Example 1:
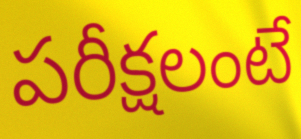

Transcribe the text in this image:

పరీక్షలంటే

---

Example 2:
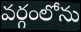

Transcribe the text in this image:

వర్గంలోను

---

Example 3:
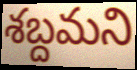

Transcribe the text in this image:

శబ్దమని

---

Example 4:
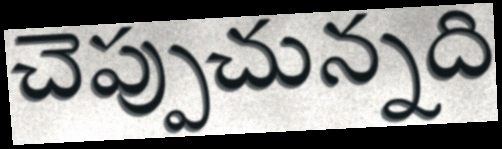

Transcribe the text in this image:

చెప్పుచున్నది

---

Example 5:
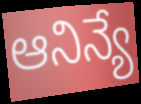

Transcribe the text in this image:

ఆనిన్యే